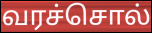
வரச்சொல்